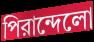
পিরান্দেলো